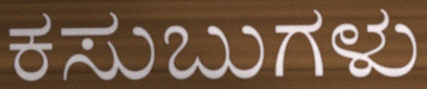
ಕಸುಬುಗಳು